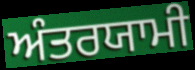
ਅੰਤਰਯਾਮੀ